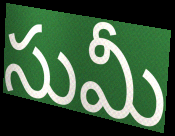
సుమీ